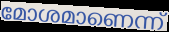
മോശമാണെന്ന്